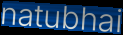
natubhai